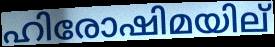
ഹിരോഷിമയില്